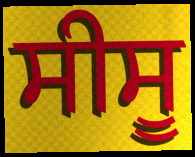
ਸੀਸੂ